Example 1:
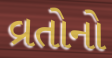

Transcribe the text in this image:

વ્રતોનો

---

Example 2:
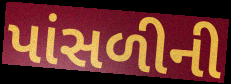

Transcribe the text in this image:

પાંસળીની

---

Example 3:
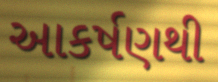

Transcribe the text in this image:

આકર્ષણથી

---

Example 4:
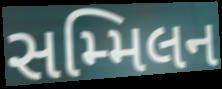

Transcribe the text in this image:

સમ્મિલન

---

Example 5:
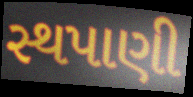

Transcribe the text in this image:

સ્થપાણી